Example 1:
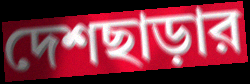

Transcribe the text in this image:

দেশছাড়ার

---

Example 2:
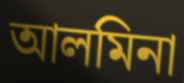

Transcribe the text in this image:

আলমিনা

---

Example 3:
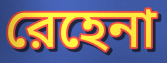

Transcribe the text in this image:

রেহেনা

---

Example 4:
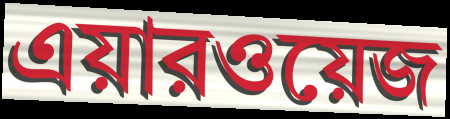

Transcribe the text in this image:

এয়ারওয়েজ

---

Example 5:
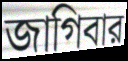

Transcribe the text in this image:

জাগিবার